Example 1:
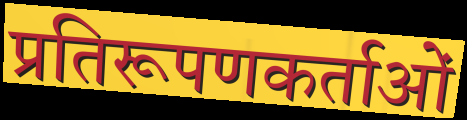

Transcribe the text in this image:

प्रतिरूपणकर्ताओं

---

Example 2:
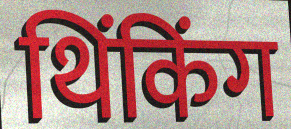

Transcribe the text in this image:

थिंकिंग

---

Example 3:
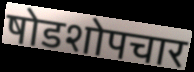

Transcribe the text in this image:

षोडशोपचार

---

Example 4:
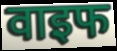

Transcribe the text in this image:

वाइफ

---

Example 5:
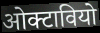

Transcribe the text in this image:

ओक्टावियो